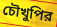
চৌখুপির